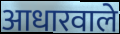
आधारवाले